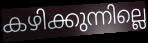
കഴിക്കുന്നില്ലെ